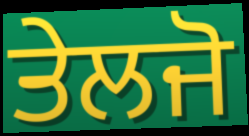
ਤੇਲਜੋ